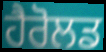
ਹੈਰੋਲਡ